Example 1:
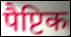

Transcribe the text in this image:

पैप्टिक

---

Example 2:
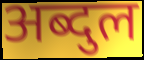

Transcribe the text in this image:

अब्दुल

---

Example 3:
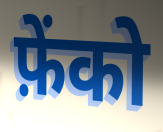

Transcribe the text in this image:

फ़ेंको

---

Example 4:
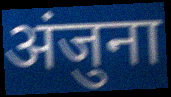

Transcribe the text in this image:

अंजुना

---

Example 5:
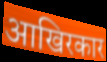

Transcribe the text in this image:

आखिरकार